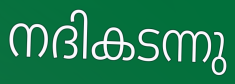
നദികടന്നു